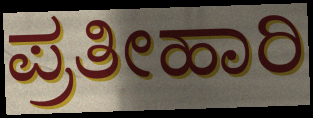
ಪ್ರತೀಹಾರಿ